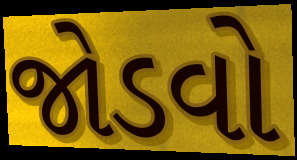
જોડવો